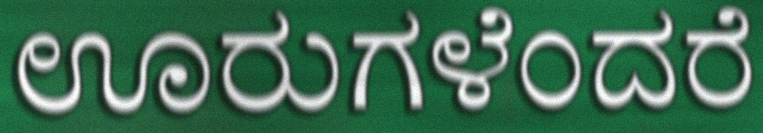
ಊರುಗಳೆಂದರೆ